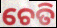
ଚେତି